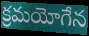
క్రమయోగేన